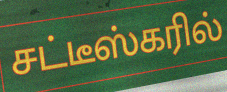
சட்டீஸ்கரில்